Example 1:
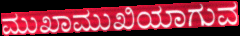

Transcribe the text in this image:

ಮುಖಾಮುಖಿಯಾಗುವ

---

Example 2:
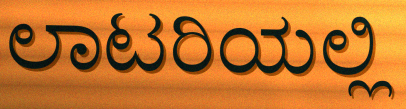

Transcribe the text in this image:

ಲಾಟರಿಯಲ್ಲಿ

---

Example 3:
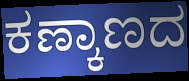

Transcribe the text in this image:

ಕಣ್ಕಾಣದ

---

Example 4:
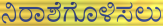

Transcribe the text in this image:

ನಿರಾಶೆಗೊಳಿಸಲು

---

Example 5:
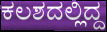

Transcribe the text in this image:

ಕಲಶದಲ್ಲಿದ್ದ